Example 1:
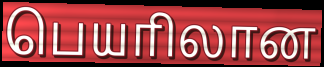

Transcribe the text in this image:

பெயரிலான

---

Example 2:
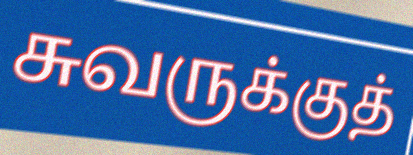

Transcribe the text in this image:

சுவருக்குத்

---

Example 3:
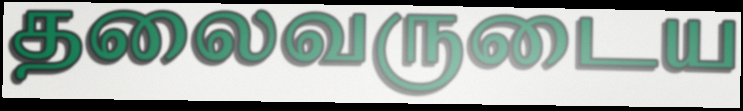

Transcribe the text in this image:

தலைவருடைய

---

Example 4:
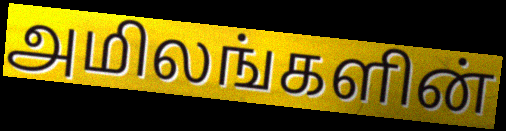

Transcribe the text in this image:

அமிலங்களின்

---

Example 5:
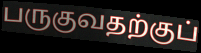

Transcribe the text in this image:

பருகுவதற்குப்